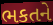
ભકતને